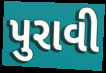
પુરાવી